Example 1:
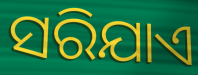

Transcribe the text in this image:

ସରିଯାଏ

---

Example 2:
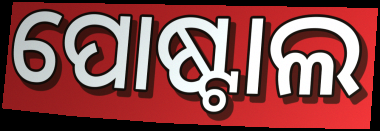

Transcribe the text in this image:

ପୋଷ୍ଟାଲ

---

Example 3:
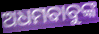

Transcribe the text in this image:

ଅଧମବାବୁଙ୍କ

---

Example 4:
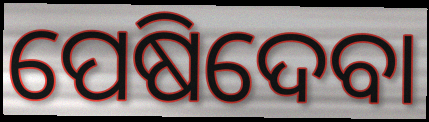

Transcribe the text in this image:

ପେଷିଦେବା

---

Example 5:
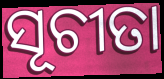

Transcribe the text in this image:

ସୂଚୀତା